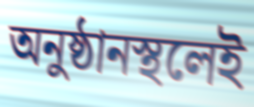
অনুষ্ঠানস্থলেই